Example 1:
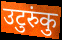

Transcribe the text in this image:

उटुरुंकु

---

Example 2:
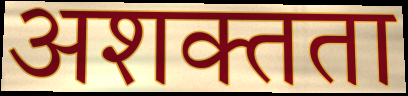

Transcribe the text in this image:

अशक्‍तता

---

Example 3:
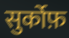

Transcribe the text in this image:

सुर्कोफ़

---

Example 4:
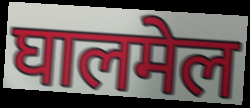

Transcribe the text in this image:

घालमेल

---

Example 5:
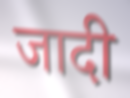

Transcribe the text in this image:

जादी